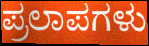
ಪ್ರಲಾಪಗಳು